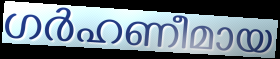
ഗർഹണീമായ